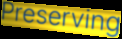
Preserving